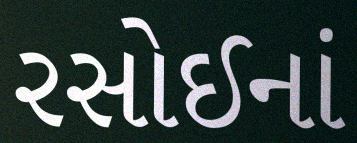
રસોઈનાં